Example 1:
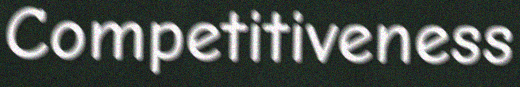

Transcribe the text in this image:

Competitiveness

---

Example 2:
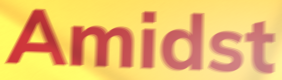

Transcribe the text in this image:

Amidst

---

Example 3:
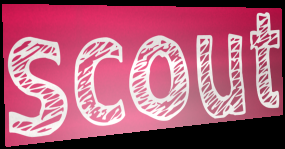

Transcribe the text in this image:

scout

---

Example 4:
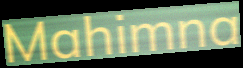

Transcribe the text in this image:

Mahimna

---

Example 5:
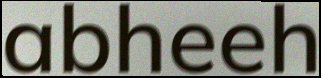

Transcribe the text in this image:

abheeh